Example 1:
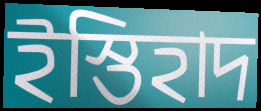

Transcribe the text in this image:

ইস্তিহাদ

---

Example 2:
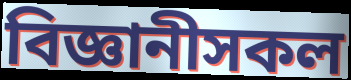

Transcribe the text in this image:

বিজ্ঞানীসকল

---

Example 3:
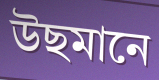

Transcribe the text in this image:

উছমানে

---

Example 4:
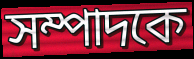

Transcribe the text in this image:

সম্পাদকে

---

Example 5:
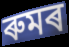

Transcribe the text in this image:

ৰুমৰ